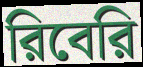
রিবেরি